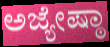
ಅಜ್ಯೇಷ್ಠಾ